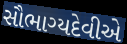
સૌભાગ્યદેવીએ